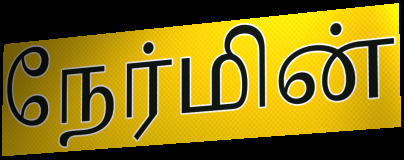
நேர்மின்